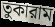
তুকারাম